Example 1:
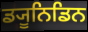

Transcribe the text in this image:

ਡ੍ਯੂਨਿਡਿਨ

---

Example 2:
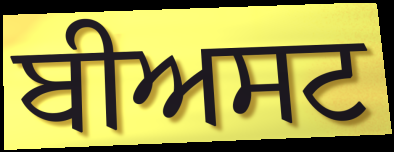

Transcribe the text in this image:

ਬੀਅਸਟ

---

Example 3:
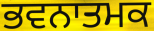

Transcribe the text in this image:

ਭਵਨਾਤਮਕ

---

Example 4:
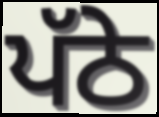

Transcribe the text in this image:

ਪੱਠੇ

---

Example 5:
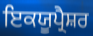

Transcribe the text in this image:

ਇਕਯੂਪ੍ਰੈਸ਼ਰ